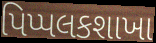
પિપ્પલકશાખા